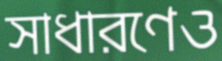
সাধারণেও